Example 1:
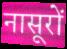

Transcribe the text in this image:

नासूरों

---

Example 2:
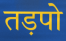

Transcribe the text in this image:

तड़पो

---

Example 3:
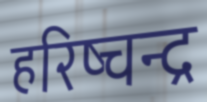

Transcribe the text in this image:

हरिष्चन्द्र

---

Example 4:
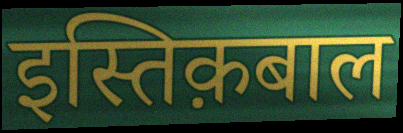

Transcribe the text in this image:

इस्तिक़बाल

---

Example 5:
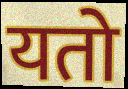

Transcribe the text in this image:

यतो